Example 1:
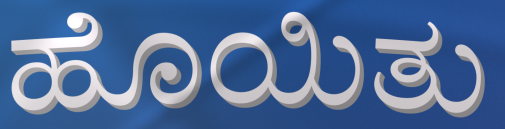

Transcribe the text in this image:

ಹೊಯಿತು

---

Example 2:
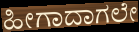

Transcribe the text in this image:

ಹೀಗಾದಾಗಲೇ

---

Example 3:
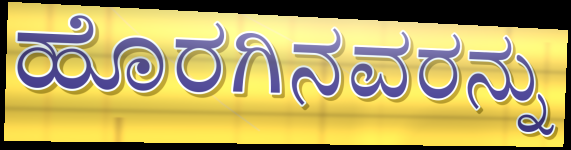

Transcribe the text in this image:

ಹೊರಗಿನವರನ್ನು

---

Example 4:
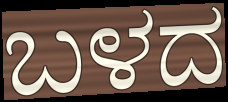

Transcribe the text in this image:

ಬಳದ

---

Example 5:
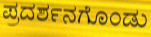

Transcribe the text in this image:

ಪ್ರದರ್ಶನಗೊಂಡು